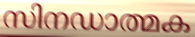
സിനഡാത്മക